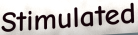
Stimulated